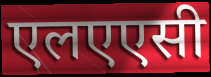
एलएएसी